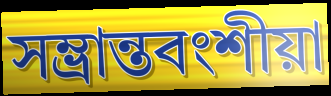
সম্ভ্রান্তবংশীয়া